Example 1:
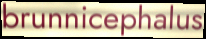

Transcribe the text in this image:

brunnicephalus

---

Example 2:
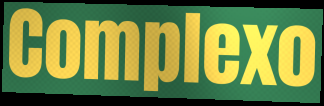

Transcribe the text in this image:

Complexo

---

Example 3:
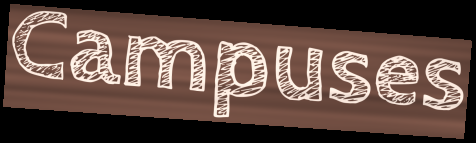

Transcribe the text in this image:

Campuses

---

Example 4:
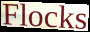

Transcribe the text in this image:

Flocks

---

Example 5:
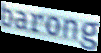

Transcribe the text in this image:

barong